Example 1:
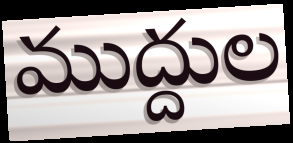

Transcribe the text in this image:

ముద్దుల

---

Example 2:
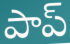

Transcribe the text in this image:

పాప్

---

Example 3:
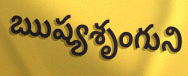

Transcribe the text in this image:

ఋష్యశృంగుని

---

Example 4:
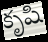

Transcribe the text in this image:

కృషి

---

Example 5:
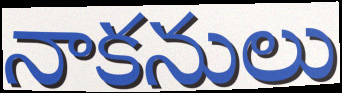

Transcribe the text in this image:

నాకనులు